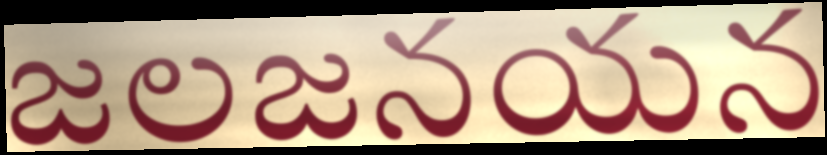
జలజనయన